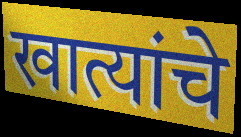
खात्यांचे